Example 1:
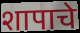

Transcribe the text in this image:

शापाचे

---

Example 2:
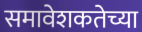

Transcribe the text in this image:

समावेशकतेच्या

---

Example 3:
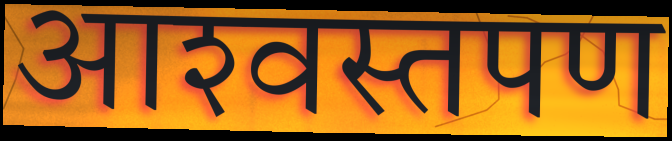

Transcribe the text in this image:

आश्वस्तपण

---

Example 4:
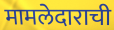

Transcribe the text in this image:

मामलेदाराची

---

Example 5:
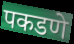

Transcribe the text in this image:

पकडणे